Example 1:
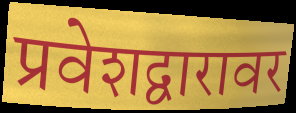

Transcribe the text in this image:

प्रवेशद्वारावर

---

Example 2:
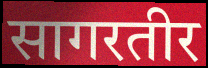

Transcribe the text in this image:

सागरतीर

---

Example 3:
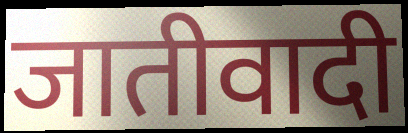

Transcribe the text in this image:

जातीवादी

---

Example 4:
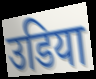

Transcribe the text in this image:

उडिया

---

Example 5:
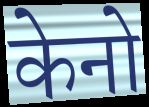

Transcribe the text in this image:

केनो